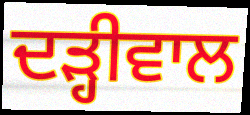
ਦੜ੍ਹੀਵਾਲ